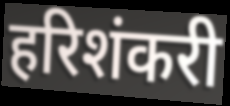
हरिशंकरी